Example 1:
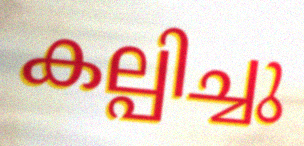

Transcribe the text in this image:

കല്പിച്ചു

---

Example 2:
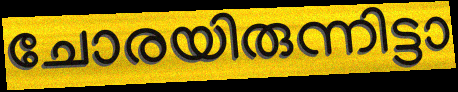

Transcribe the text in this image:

ചോരയിരുന്നിട്ടാ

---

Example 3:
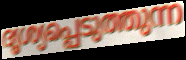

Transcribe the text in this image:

ദൃശ്യപ്പെടുത്തുന്ന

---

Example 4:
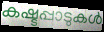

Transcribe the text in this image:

കഷ്ടപ്പാടുകൾ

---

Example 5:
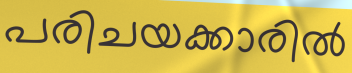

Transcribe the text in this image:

പരിചയക്കാരിൽ